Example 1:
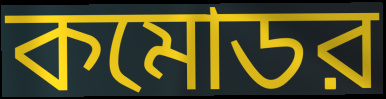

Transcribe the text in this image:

কমোডর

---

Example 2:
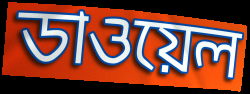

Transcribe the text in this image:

ডাওয়েল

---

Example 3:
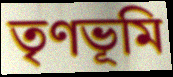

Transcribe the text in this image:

তৃণভূমি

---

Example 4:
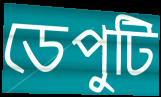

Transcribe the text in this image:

ডেপুটি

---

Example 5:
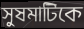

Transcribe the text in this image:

সুষমাটিকে